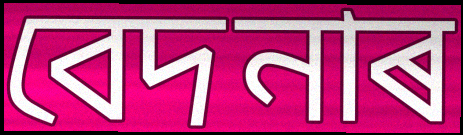
বেদনাৰ